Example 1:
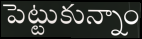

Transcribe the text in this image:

పెట్టుకున్నాం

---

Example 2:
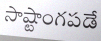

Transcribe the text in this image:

సాష్టాంగపడే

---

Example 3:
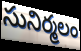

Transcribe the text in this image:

సునిర్మలం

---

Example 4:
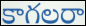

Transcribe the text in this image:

కాగలరా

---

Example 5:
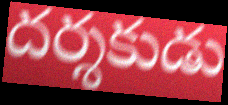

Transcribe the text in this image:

దర్శకుడు